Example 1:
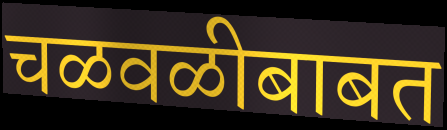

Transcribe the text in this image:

चळवळीबाबत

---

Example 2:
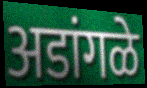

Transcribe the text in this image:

अडांगळे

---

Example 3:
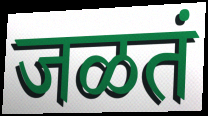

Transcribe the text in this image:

जळतं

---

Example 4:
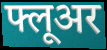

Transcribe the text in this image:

फ्लूअर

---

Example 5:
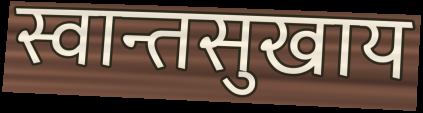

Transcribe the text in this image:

स्वान्तसुखाय